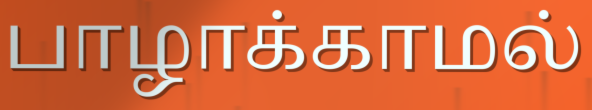
பாழாக்காமல்